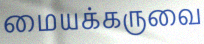
மையக்கருவை